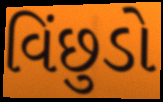
વિંછુડો